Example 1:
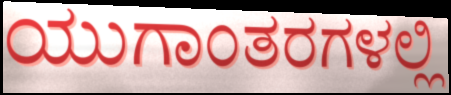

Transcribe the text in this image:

ಯುಗಾಂತರಗಳಲ್ಲಿ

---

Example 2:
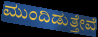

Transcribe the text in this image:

ಮುಂದಿಡುತ್ತೇವೆ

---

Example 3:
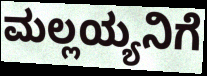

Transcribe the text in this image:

ಮಲ್ಲಯ್ಯನಿಗೆ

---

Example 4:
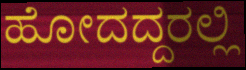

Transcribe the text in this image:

ಹೋದದ್ದರಲ್ಲಿ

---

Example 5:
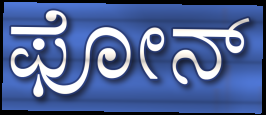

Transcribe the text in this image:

ಫೋನ್